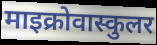
माइक्रोवास्कुलर